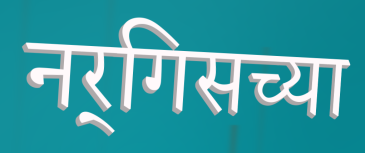
नर्गिसच्या